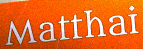
Matthai